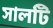
সালটি